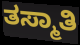
ತಸ್ಮಾತಿ